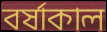
বর্ষাকাল